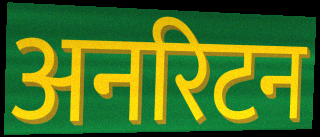
अनरिटन